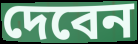
দেবেন